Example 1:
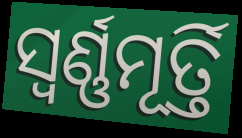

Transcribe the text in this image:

ସ୍ଵର୍ଣ୍ଣମୂର୍ତ୍ତି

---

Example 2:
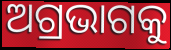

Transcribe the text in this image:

ଅଗ୍ରଭାଗକୁ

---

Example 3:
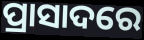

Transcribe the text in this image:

ପ୍ରାସାଦରେ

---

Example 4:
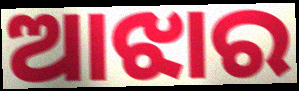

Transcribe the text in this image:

ଆଝାର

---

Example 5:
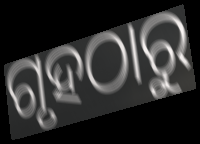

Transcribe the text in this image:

ଗୃହଠାରୁ